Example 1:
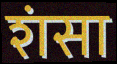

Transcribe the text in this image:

शंसा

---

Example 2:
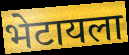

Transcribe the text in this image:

भेटायला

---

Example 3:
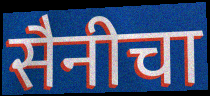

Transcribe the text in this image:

सैनीचा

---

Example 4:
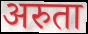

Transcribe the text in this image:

अरुता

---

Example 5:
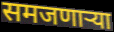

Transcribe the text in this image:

समजणाऱ्या